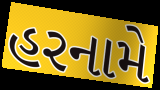
હરનામે